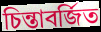
চিন্তাবর্জিত